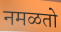
नमळतो